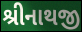
શ્રીનાથજી